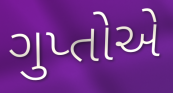
ગુપ્તોએ